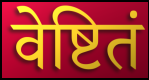
वेष्टितं